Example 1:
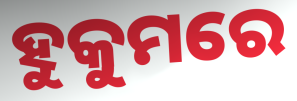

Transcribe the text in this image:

ହୁକୁମରେ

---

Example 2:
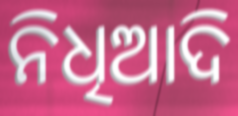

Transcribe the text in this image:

ନିଧିଆଦି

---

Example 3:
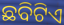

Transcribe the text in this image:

ଛବିଟିଏ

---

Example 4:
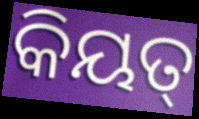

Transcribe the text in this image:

କିୟତ୍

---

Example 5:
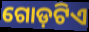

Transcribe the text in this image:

ଗୋଡ଼ଟିଏ